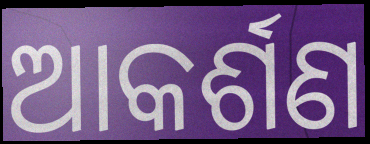
ଆକର୍ଶଣ